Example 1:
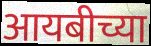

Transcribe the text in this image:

आयबीच्या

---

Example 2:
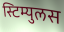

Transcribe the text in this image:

स्टिम्युलस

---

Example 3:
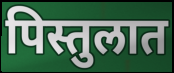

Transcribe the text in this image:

पिस्तुलात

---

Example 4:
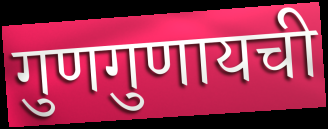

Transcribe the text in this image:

गुणगुणायची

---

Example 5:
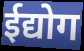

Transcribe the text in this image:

ईद्योग